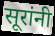
सूरांनी